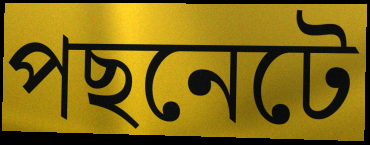
পছনেটে